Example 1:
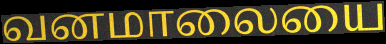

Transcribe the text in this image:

வனமாலையை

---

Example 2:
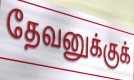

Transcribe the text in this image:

தேவனுக்குக்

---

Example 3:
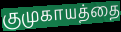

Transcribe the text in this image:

குமுகாயத்தை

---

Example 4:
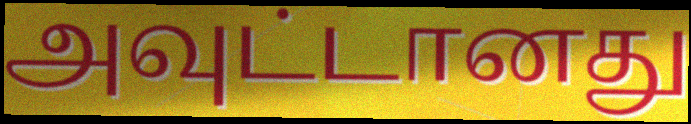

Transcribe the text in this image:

அவுட்டானது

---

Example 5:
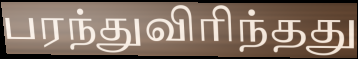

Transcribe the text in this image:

பரந்துவிரிந்தது